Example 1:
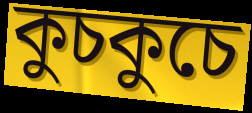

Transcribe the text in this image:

কুচকুচে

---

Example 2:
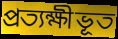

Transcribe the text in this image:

প্রত্যক্ষীভূত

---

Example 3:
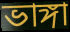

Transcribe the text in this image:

ভাঙ্গা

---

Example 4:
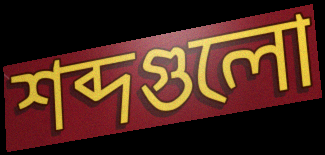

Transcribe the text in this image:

শব্দগুলো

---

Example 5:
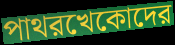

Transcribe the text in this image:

পাথরখেকোদের